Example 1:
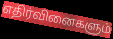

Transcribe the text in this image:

எதிர்வினைகளும்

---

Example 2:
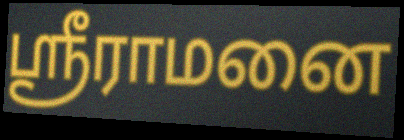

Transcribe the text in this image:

ஸ்ரீராமனை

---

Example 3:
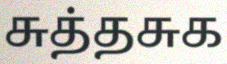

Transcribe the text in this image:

சுத்தசுக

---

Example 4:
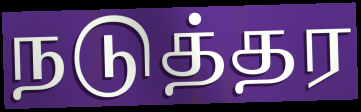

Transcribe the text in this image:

நடுத்தர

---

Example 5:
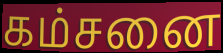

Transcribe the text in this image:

கம்சனை